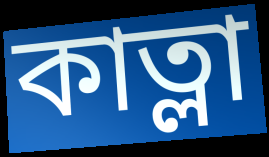
কাত্লা